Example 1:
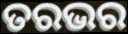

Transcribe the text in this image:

ତରଭର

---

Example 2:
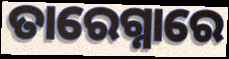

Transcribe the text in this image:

ତାରେଗ୍ନାରେ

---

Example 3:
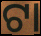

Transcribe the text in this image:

ଟା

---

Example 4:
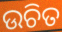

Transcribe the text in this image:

ଉଚିତ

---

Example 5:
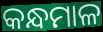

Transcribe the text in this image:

କନ୍ଧମାଳ